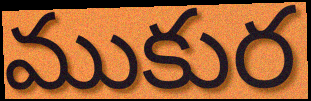
ముకుర